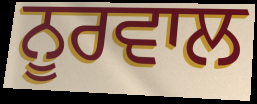
ਨੂਰਵਾਲ